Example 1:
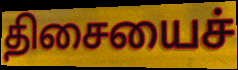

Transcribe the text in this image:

திசையைச்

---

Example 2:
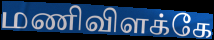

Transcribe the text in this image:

மணிவிளக்கே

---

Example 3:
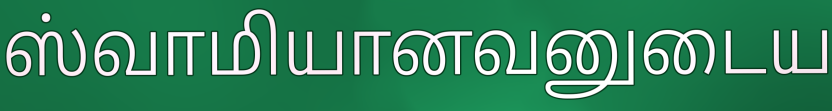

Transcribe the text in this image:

ஸ்வாமியானவனுடைய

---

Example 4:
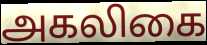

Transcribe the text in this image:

அகலிகை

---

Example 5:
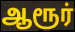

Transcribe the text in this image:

ஆரூர்